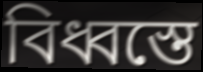
বিধ্বস্তে